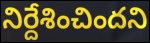
నిర్దేశించిందని